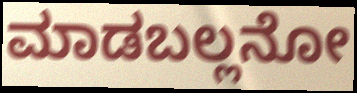
ಮಾಡಬಲ್ಲನೋ